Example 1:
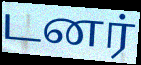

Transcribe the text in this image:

டனர்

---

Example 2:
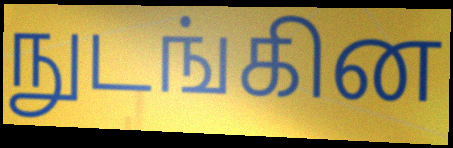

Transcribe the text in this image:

நுடங்கின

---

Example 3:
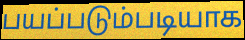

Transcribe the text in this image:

பயப்படும்படியாக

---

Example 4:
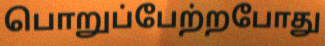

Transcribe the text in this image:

பொறுப்பேற்றபோது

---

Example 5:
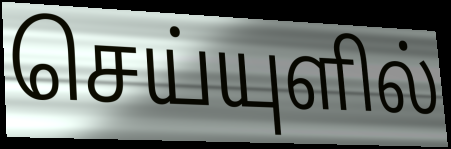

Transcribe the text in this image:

செய்யுளில்